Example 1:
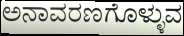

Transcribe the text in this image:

ಅನಾವರಣಗೊಳ್ಳುವ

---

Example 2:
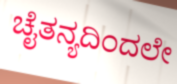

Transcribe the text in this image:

ಚೈತನ್ಯದಿಂದಲೇ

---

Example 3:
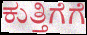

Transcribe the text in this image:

ಕುತ್ತಿಗೆಗೆ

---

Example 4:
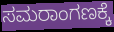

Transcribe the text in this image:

ಸಮರಾಂಗಣಕ್ಕೆ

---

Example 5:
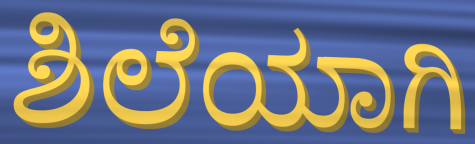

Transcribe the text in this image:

ಶಿಲೆಯಾಗಿ